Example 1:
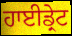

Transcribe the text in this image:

ਹਾਈਡ੍ਰੇਟ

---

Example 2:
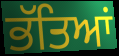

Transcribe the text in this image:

ਭੱਤਿਆਂ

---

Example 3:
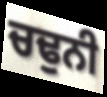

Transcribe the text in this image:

ਚਢੁਨੀ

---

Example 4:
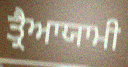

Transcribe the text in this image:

ਤ੍ਰੈਆਯਾਮੀ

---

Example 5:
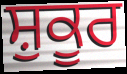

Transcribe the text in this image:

ਸ਼ੁਕੂਰ